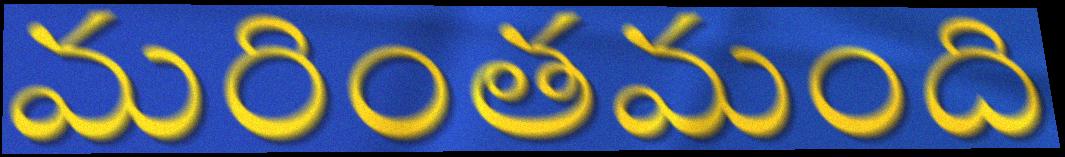
మరింతమంది